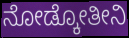
ನೋಡ್ಕೋತೀನಿ